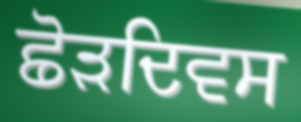
ਛੋੜਦਿਵਸ